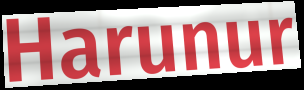
Harunur